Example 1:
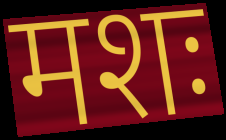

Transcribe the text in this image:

मशः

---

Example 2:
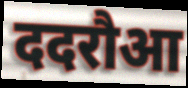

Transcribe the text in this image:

ददरौआ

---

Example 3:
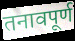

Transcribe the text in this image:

तनावपूर्ण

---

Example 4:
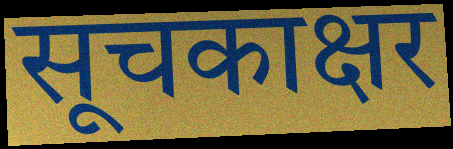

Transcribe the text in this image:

सूचकाक्षर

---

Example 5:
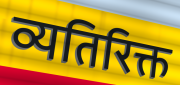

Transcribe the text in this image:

व्यतिरिक्त